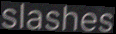
slashes